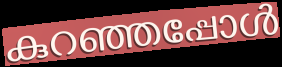
കുറഞ്ഞപ്പോൾ